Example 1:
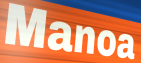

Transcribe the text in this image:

Manoa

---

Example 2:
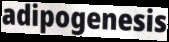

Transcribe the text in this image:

adipogenesis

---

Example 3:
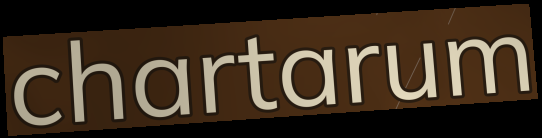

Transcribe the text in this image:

chartarum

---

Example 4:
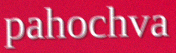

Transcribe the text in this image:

pahochva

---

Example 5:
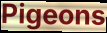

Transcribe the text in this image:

Pigeons